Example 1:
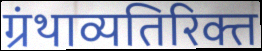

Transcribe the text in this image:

ग्रंथाव्यतिरिक्त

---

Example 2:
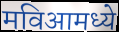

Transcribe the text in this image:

मविआमध्ये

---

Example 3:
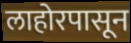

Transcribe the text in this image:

लाहोरपासून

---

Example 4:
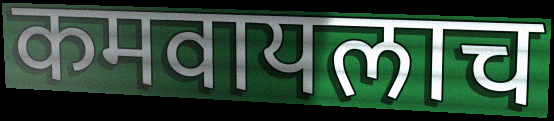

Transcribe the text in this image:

कमवायलाच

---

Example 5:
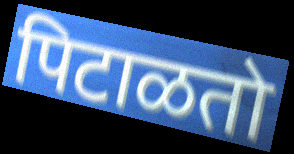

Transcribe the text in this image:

पिटाळतो